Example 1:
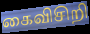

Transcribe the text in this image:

கைவிசிறி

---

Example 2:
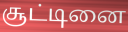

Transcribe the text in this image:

சூட்டினை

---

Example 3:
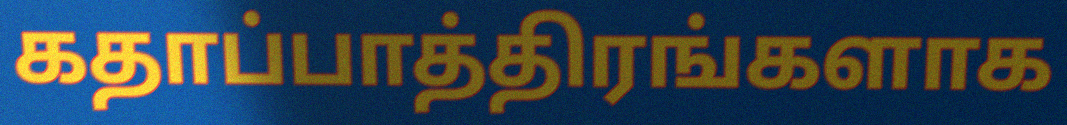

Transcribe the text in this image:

கதாப்பாத்திரங்களாக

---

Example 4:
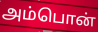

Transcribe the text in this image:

அம்பொன்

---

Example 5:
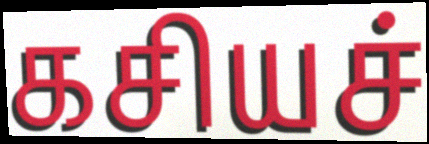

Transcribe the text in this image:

கசியச்